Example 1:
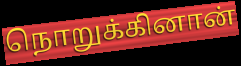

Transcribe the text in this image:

நொறுக்கினான்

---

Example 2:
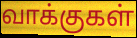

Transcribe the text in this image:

வாக்குகள்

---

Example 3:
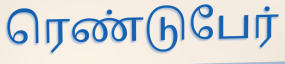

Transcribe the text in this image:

ரெண்டுபேர்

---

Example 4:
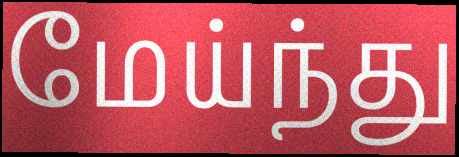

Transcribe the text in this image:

மேய்ந்து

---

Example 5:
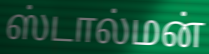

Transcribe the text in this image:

ஸ்டால்மன்